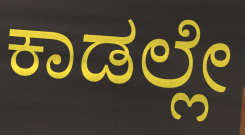
ಕಾಡಲ್ಲೇ